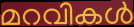
മറവികൾ